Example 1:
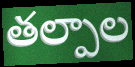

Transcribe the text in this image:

తల్పాల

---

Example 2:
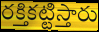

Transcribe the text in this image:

రక్తికట్టిస్తారు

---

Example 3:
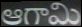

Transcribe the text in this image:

ఆగామి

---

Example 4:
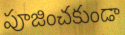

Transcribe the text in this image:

పూజించకుండా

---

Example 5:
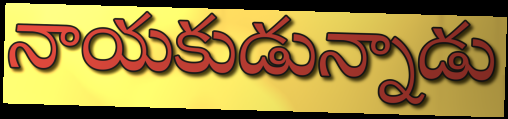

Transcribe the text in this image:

నాయకుడున్నాడు